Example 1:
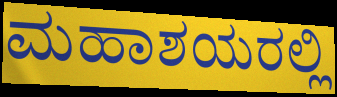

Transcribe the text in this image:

ಮಹಾಶಯರಲ್ಲಿ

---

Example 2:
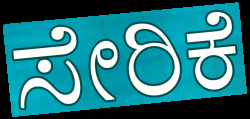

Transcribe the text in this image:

ಸೇರಿಕೆ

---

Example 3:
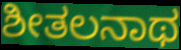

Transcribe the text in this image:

ಶೀತಲನಾಥ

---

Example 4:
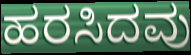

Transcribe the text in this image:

ಹರಸಿದವು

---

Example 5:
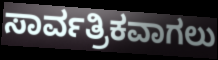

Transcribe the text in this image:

ಸಾರ್ವತ್ರಿಕವಾಗಲು